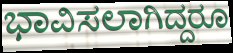
ಭಾವಿಸಲಾಗಿದ್ದರೂ